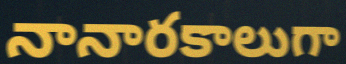
నానారకాలుగా